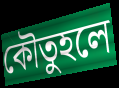
কৌতুহলে